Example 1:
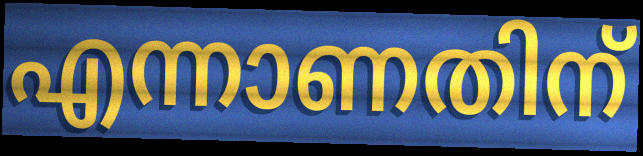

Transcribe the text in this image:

എന്നാണതിന്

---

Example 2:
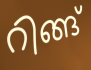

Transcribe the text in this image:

റിങ്ങ്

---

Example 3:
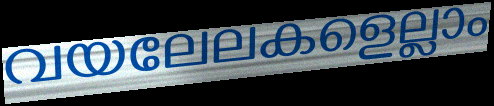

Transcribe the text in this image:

വയലേലകളെല്ലാം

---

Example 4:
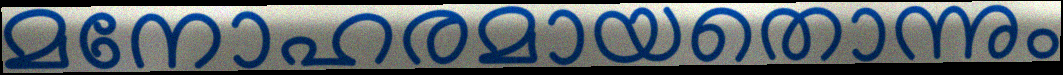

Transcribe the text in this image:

മനോഹരമായതൊന്നും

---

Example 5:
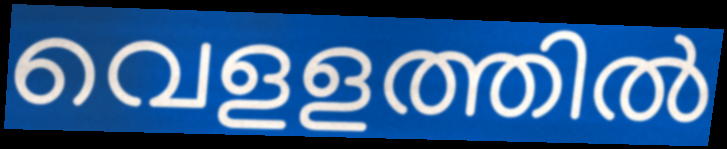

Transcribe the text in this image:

വെളളത്തിൽ